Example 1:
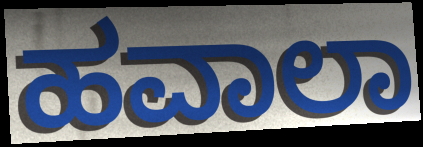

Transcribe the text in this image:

ಹವಾಲಾ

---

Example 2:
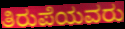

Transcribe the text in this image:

ತಿರುಪೆಯವರು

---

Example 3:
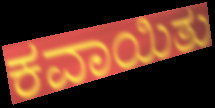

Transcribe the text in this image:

ಕವಾಯಿತು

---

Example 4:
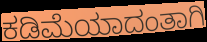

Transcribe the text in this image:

ಕಡಿಮೆಯಾದಂತಾಗಿ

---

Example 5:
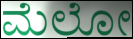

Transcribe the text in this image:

ಮೆಲೋ